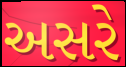
અસરે